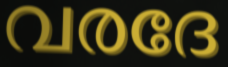
വരദേ